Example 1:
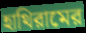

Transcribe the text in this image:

হাথিরামের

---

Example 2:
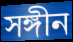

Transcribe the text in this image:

সঙ্গীন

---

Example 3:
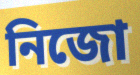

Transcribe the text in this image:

নিজো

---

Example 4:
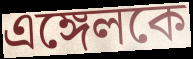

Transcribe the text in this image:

এঙ্গেলকে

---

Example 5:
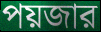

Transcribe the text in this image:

পয়জার